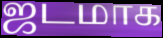
ஜடமாக